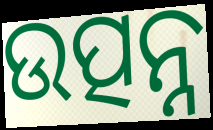
ଉତ୍ପନ୍ନ